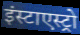
इंस्टाएस्ट्रो